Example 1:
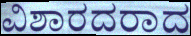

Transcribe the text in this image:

ವಿಶಾರದರಾದ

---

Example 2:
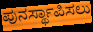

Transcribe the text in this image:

ಪುನರ್ಸ್ಥಾಪಿಸಲು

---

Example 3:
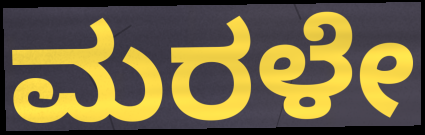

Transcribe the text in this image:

ಮರಳೇ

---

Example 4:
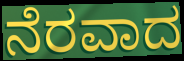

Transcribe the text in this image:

ನೆರವಾದ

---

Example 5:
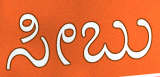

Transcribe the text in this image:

ಸೀಬು